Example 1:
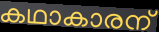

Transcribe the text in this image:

കഥാകാരന്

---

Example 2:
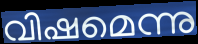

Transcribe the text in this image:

വിഷമെന്നു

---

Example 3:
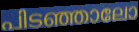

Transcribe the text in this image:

പിടഞ്ഞാലോ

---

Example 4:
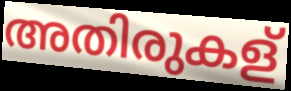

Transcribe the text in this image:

അതിരുകള്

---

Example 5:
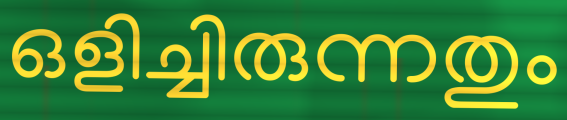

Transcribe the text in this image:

ഒളിച്ചിരുന്നതും